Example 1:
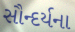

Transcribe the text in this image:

સૌન્દર્યના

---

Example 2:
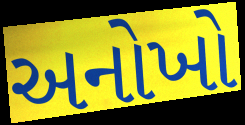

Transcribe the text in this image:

અનોખો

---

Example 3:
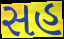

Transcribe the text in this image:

સહ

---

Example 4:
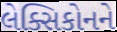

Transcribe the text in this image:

લેક્સિકોનને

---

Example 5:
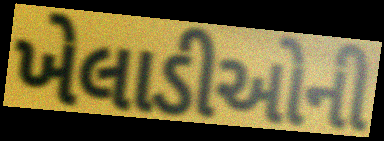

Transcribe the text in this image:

ખેલાડીઓની